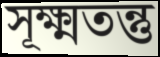
সূক্ষ্মতন্তু